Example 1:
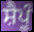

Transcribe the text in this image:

ਸ਼ੈਪੂੰ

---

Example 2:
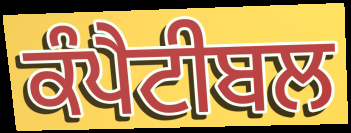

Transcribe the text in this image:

ਕੰਪੈਟੀਬਲ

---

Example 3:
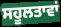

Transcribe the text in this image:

ਸਹੂਲਤਾਵਾਂ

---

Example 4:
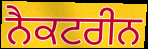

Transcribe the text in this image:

ਨੈਕਟਰੀਨ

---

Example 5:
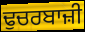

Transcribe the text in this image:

ਢੁਚਰਬਾਜ਼ੀ